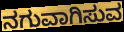
ನಗುವಾಗಿಸುವ